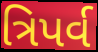
ત્રિપર્વ